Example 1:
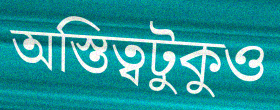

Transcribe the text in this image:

অস্তিত্বটুকুও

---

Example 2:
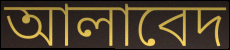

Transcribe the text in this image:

আলাবেদ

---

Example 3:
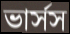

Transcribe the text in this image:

ভার্সস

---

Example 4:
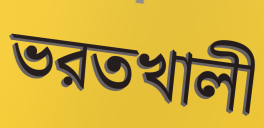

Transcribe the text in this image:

ভরতখালী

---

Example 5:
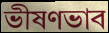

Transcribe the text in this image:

ভীষণভাব